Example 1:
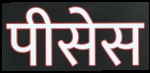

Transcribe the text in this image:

पीसेस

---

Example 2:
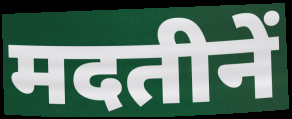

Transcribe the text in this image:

मदतीनें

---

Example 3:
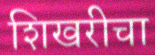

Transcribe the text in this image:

शिखरीचा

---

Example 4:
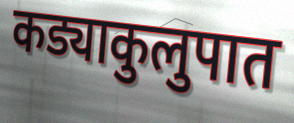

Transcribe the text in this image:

कड्याकुलुपात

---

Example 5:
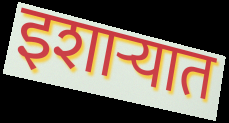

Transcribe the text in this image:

इशाऱ्यात